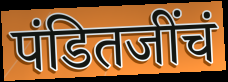
पंडितजींचं